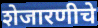
शेजारणीचे